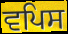
ਵਪਿਸ